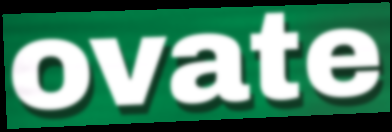
ovate